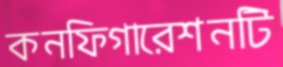
কনফিগারেশনটি